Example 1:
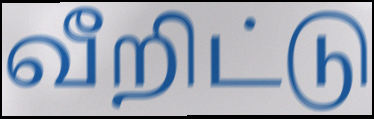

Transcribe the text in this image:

வீறிட்டு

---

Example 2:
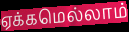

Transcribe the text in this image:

ஏக்கமெல்லாம்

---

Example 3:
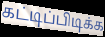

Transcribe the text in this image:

கட்டிப்பிடிக்க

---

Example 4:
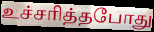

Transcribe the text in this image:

உச்சரித்தபோது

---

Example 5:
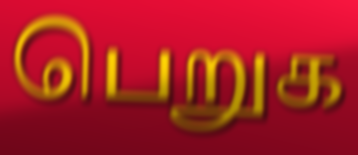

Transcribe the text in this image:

பெறுக